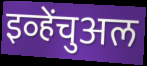
इव्हेंचुअल